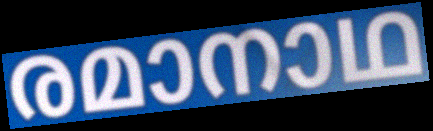
രമാനാഥ